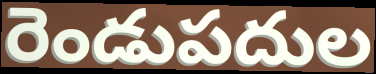
రెండుపదుల